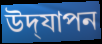
উদ্‌যাপন